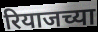
रियाजच्या